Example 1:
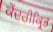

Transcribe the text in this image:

ਕੇਂਦਰੀਕ੍ਰਿਤ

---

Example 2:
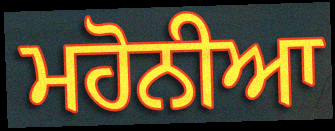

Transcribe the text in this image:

ਮਹੋਨੀਆ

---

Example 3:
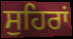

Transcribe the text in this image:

ਸੁਹਿਰਾਂ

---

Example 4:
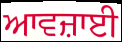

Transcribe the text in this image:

ਆਵਜ਼ਾਈ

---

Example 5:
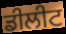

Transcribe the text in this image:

ਡੀਲੀਟ